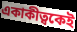
একাকীত্বকেই